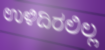
ಉಳಿದಿರಲಿಲ್ಲ